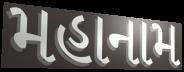
મહાનામ